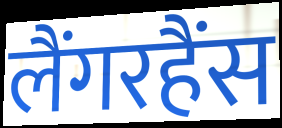
लैंगरहैंस